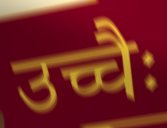
उच्चैः